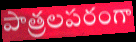
పాత్రలపరంగా